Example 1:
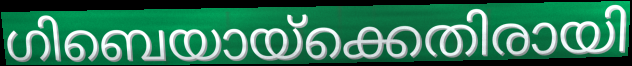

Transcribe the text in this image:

ഗിബെയായ്ക്കെതിരായി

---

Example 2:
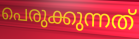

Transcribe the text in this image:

പെരുക്കുന്നത്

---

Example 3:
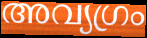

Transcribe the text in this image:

അവ്യഗ്രം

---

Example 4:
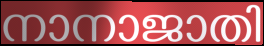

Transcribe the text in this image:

നാനാജാതി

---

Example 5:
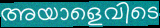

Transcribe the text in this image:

അയാളെവിടെ